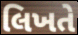
લિખતે